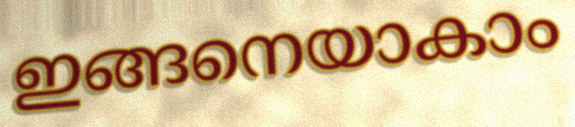
ഇങ്ങനെയാകാം